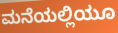
ಮನೆಯಲ್ಲಿಯೂ